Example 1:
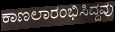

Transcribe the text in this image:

ಕಾಣಲಾರಂಭಿಸಿದ್ದವು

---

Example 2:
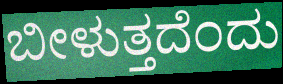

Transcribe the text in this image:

ಬೀಳುತ್ತದೆಂದು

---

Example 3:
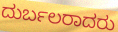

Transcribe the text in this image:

ದುರ್ಬಲರಾದರು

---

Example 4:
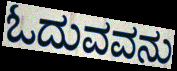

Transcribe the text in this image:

ಓದುವವನು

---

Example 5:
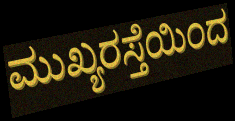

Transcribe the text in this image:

ಮುಖ್ಯರಸ್ತೆಯಿಂದ